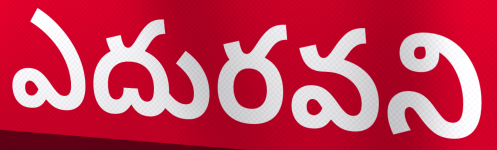
ఎదురవని